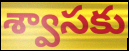
శ్వాసకు